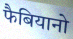
फैबियानो